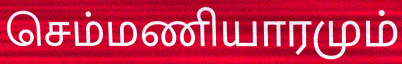
செம்மணியாரமும்